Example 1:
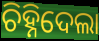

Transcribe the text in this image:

ଚିହ୍ନିଦେଲା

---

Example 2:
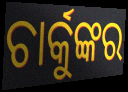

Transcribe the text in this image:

ଚାର୍କୁଙ୍କର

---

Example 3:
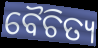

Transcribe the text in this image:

ବୈଚିତ୍ୟ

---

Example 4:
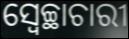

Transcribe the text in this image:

ସ୍ୱେଚ୍ଛାଚାରୀ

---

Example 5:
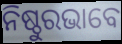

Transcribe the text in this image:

ନିଷ୍ଠୁରଭାବେ